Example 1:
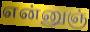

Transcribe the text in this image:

என்னுஞ்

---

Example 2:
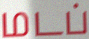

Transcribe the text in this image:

மடப்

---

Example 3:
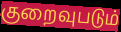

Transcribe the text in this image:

குறைவுபடும்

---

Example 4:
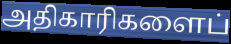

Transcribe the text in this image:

அதிகாரிகளைப்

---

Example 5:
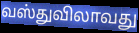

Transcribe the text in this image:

வஸ்துவிலாவது